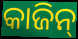
କାଜିନ୍